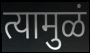
त्यामुळं